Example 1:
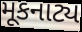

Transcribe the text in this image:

મૂકનાટ્ય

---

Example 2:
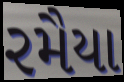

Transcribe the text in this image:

રમૈયા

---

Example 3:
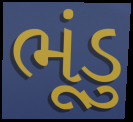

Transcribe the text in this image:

ભૂંડુ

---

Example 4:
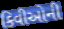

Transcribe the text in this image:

કિવીઓની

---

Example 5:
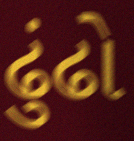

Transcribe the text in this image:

ઢુંઢો